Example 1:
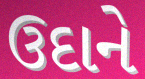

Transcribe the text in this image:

ઉદાને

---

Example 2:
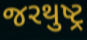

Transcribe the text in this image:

જરથુષ્ટ્ર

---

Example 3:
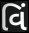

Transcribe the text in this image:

વિં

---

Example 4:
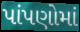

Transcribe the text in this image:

પાંપણોમાં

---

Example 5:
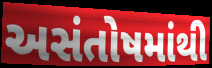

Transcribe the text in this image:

અસંતોષમાંથી